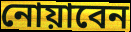
নোয়াবেন